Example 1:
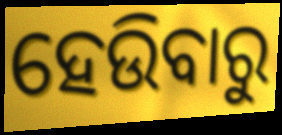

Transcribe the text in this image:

ହେଉିବାରୁ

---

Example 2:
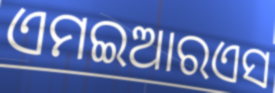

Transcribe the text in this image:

ଏମଇଆରଏସ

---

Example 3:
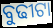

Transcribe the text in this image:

ବୁଢୀଟା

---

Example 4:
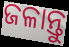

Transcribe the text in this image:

ଜଳାନ୍ତୁ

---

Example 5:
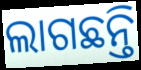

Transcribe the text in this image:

ଲାଗଛନ୍ତି